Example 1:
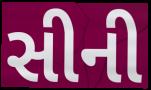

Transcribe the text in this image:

સીની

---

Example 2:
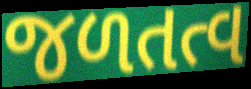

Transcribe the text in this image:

જળતત્વ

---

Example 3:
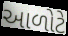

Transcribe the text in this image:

આળોટે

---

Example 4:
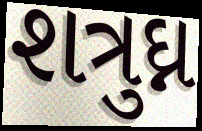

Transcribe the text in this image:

શત્રુઘ્ન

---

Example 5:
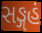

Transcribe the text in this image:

સઙ્ગહં